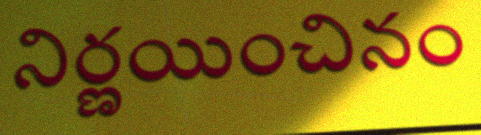
నిర్ణయించినం